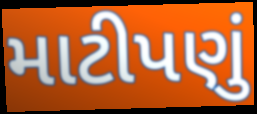
માટીપણું